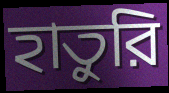
হাতুরি